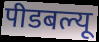
पीडबल्यू